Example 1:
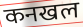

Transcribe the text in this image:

कनखल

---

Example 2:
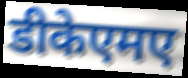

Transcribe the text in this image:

डीकेएमए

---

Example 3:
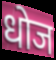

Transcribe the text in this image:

धोज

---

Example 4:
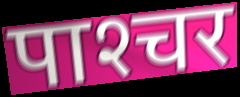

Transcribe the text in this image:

पाश्चर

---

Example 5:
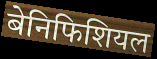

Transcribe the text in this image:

बेनिफिशियल